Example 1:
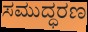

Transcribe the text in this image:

ಸಮುದ್ಧರಣ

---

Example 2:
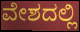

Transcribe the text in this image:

ವೇಶದಲ್ಲಿ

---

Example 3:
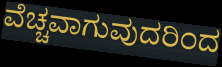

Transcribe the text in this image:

ವೆಚ್ಚವಾಗುವುದರಿಂದ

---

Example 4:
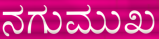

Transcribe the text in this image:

ನಗುಮುಖ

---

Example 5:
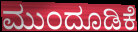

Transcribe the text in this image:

ಮುಂದೂಡಿಕೆ